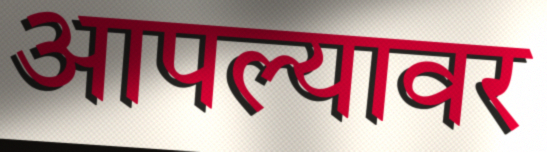
आपल्यावर